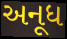
અનૂધ